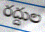
రద్దుల